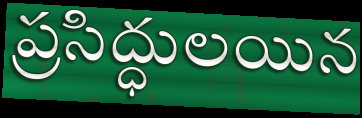
ప్రసిద్ధులయిన